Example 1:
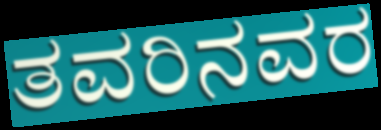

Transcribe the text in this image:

ತವರಿನವರ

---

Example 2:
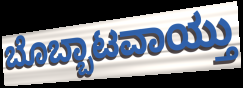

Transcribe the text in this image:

ಬೊಬ್ಬಾಟವಾಯ್ತು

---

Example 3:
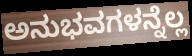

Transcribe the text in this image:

ಅನುಭವಗಳನ್ನೆಲ್ಲ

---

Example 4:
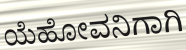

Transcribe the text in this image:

ಯೆಹೋವನಿಗಾಗಿ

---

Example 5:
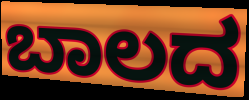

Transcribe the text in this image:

ಬಾಲದ